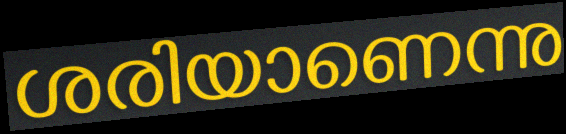
ശരിയാണെന്നു